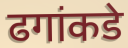
ढगांकडे